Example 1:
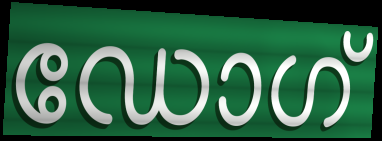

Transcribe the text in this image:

ഡോഗ്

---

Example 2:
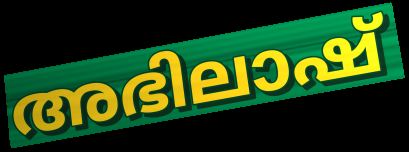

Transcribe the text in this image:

അഭിലാഷ്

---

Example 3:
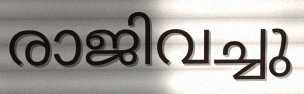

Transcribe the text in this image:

രാജിവച്ചു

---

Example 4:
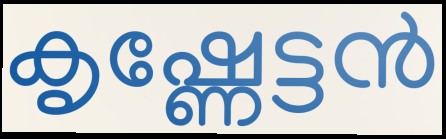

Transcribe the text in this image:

കൃഷ്ണേട്ടൻ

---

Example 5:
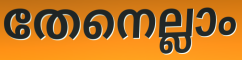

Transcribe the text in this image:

തേനെല്ലാം